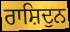
ਰਾਸ਼ਿਦੁਨ